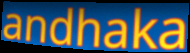
andhaka